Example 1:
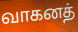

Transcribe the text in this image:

வாகனத்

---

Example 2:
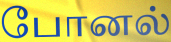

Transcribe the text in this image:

போனல்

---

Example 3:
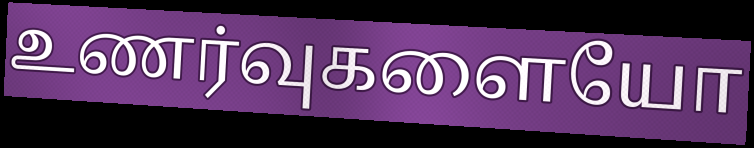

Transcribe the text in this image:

உணர்வுகளையோ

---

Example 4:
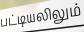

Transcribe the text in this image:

பட்டியலிலும்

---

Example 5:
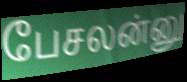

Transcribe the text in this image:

பேசலன்னு